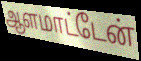
ஆளமாட்டேன்